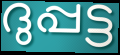
ദുപ്പട്ട